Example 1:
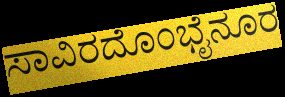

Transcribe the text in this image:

ಸಾವಿರದೊಂಭೈನೂರ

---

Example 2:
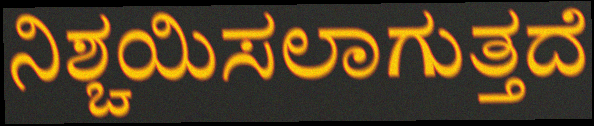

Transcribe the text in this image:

ನಿಶ್ಚಯಿಸಲಾಗುತ್ತದೆ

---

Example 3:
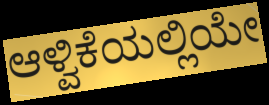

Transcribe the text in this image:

ಆಳ್ವಿಕೆಯಲ್ಲಿಯೇ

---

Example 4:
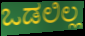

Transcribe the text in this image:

ಒಡಲಿಲ್ಲ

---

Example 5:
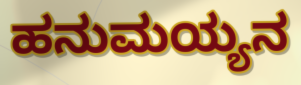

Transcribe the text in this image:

ಹನುಮಯ್ಯನ